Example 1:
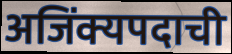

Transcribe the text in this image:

अजिंक्यपदाची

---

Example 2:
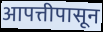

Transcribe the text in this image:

आपत्तीपासून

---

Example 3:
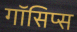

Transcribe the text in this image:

गॉसिप्स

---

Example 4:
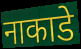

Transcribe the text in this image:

नाकाडे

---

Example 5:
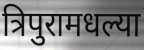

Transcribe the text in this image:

त्रिपुरामधल्या